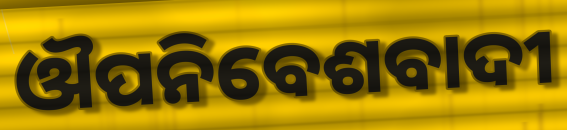
ଔପନିବେଶବାଦୀ